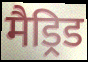
मैड्रिड